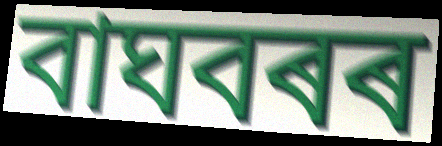
বাঘবৰৰ